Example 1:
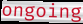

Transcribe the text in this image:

ongoing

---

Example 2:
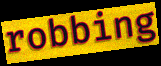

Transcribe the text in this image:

robbing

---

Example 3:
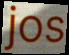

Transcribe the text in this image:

jos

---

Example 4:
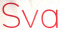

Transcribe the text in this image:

Sva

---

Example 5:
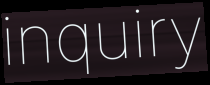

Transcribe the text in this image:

inquiry